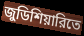
জুডিশিয়ারিতে